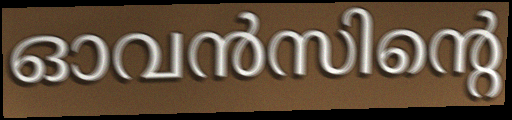
ഓവൻസിന്റെ